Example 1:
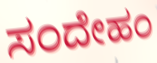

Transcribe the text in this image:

ಸಂದೇಹಂ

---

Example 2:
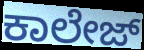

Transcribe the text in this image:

ಕಾಲೇಜ್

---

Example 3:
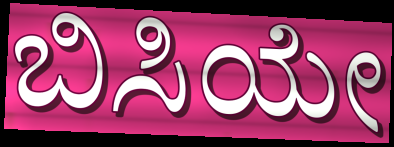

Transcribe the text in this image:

ಬಿಸಿಯೇ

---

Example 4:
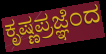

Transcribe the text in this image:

ಕೃಷ್ಣಪ್ರಜ್ಞೆಂದ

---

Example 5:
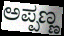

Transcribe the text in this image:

ಅಪ್ಪಣ್ಣ